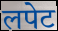
लपेट